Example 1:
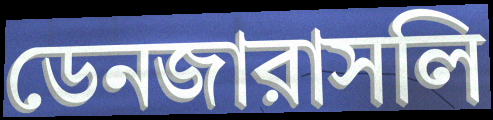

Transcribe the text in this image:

ডেনজারাসলি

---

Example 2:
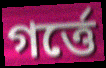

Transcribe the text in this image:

গর্ত্তে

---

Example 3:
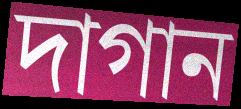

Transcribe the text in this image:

দাগান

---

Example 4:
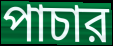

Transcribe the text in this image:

পাচার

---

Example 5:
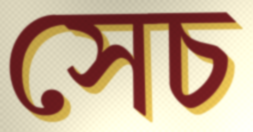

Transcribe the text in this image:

সেচ